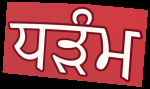
ਧੜੰਮ